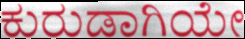
ಕುರುಡಾಗಿಯೇ